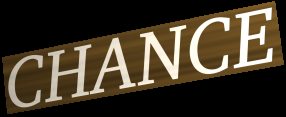
CHANCE